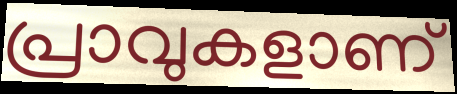
പ്രാവുകളാണ്